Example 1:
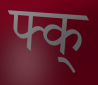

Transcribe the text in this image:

फ्क्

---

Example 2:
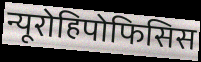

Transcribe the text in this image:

न्यूरोहिपोफिसिस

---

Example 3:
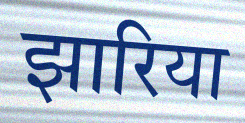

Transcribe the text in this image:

झारिया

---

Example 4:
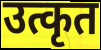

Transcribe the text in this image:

उत्कृत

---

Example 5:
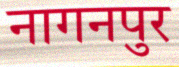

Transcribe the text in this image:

नागनपुर